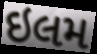
ઇલમ